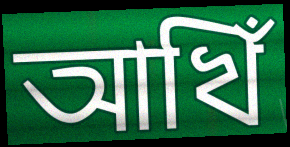
আখিঁ